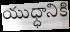
యుధ్ధానికి